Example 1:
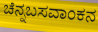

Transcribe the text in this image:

ಚೆನ್ನಬಸವಾಂಕನ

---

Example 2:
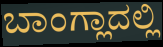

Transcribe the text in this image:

ಬಾಂಗ್ಲಾದಲ್ಲಿ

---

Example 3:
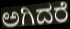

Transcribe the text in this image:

ಅಗಿದರೆ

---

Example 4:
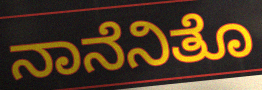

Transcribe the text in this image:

ನಾನೆನಿತೊ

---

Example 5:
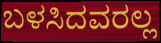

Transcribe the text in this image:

ಬಳಸಿದವರಲ್ಲ